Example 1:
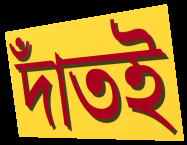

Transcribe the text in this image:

দাঁতই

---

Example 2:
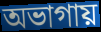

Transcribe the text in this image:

অভাগায়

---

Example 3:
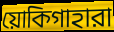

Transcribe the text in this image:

য়োকিগাহারা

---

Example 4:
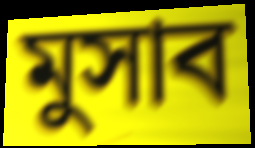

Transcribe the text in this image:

মুসাব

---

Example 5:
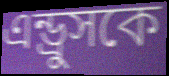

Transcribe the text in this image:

এন্ড্রুসকে